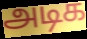
அடிக